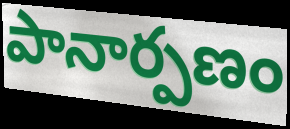
పానార్పణం